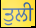
ਤੁਲੀ